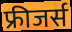
फ्रीजर्स